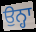
ਉਨ੍ਹਾ